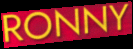
RONNY